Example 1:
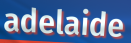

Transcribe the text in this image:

adelaide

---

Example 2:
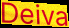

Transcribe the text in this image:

Deiva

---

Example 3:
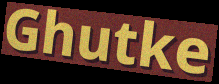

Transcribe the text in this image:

Ghutke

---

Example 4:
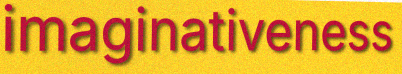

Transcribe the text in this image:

imaginativeness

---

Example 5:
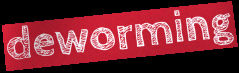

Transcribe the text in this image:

deworming